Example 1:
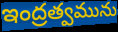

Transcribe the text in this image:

ఇంద్రత్వమును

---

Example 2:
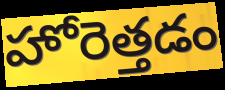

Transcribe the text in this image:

హోరెత్తడం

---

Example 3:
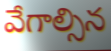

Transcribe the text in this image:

వేగాల్సిన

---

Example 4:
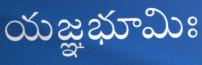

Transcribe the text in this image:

యజ్ఞభూమిః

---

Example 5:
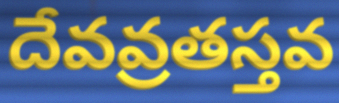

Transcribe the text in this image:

దేవవ్రతస్తవ